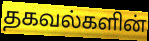
தகவல்களின்